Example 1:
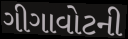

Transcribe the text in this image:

ગીગાવોટની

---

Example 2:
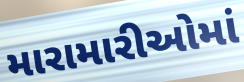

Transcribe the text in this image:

મારામારીઓમાં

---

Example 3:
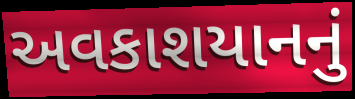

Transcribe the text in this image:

અવકાશયાનનું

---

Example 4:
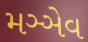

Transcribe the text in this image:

મઞ્ઞેવ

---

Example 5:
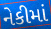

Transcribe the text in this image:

નેકીમાં